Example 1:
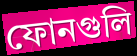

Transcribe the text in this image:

ফোনগুলি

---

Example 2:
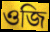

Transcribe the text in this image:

ওজি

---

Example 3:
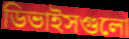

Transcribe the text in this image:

ডিভাইসগুলো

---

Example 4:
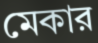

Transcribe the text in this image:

মেকার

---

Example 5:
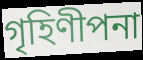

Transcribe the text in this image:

গৃহিণীপনা